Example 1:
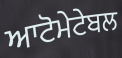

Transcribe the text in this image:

ਆਟੋਮੇਟੇਬਲ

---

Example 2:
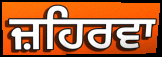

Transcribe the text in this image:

ਜ਼ਹਿਰਵਾ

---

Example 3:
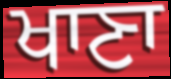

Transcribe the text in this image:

ਖਾਣਾ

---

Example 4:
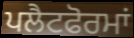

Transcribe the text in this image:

ਪਲੈਟਫੋਰਮਾਂ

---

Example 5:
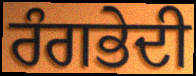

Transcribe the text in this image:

ਰੰਗਭੇਦੀ